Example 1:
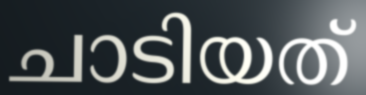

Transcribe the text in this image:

ചാടിയത്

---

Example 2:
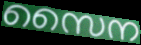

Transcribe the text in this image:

സൈന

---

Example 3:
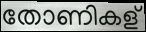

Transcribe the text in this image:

തോണികള്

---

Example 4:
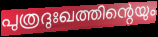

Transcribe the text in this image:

പുത്രദുഃഖത്തിന്റെയും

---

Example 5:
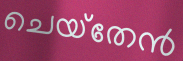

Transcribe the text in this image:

ചെയ്‌തേൻ